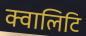
क्वालिटि